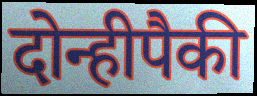
दोन्हीपैकी